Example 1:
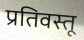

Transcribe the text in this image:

प्रतिवस्तू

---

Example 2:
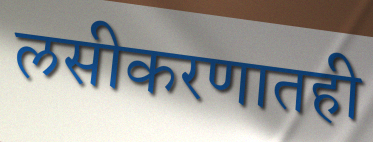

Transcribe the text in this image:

लसीकरणातही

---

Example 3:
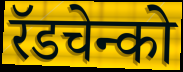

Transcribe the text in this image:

रॅडचेन्को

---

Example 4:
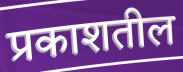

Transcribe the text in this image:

प्रकाशतील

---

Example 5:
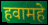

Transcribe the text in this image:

हवामहे